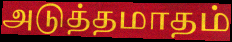
அடுத்தமாதம்